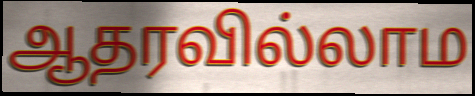
ஆதரவில்லாம